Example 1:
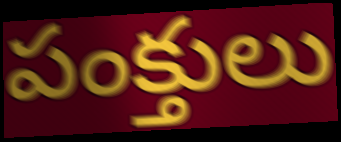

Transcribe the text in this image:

పంక్తులు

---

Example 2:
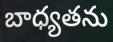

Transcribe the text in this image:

బాధ్యతను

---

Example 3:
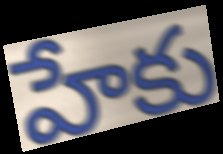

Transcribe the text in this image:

హేకు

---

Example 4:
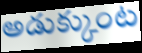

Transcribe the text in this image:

అడుక్కుంట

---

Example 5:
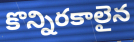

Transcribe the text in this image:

కొన్నిరకాలైన